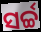
ସର୍ଚ୍ଚ